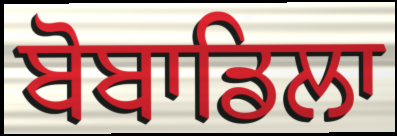
ਬੋਬਾਡਿਲਾ